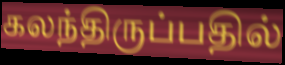
கலந்திருப்பதில்